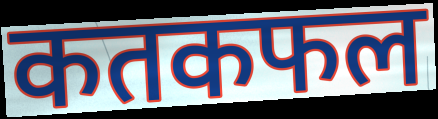
कतकफल